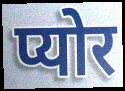
प्योर